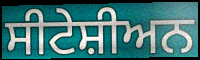
ਸੀਟੇਸ਼ੀਅਨ